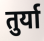
तुर्या